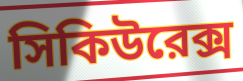
সিকিউরেক্স